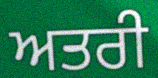
ਅਤਰੀ